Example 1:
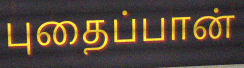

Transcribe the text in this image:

புதைப்பான்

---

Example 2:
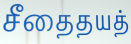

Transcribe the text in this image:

சீதைதயத்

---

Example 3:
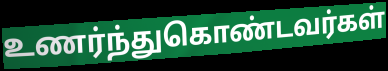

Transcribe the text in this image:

உணர்ந்துகொண்டவர்கள்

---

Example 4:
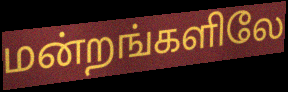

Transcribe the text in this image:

மன்றங்களிலே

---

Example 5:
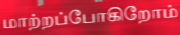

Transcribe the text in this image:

மாற்றப்போகிறோம்